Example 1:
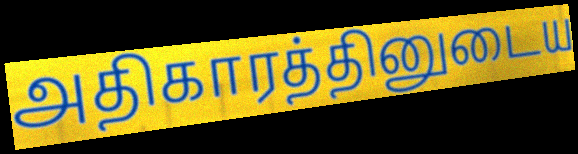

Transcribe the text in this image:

அதிகாரத்தினுடைய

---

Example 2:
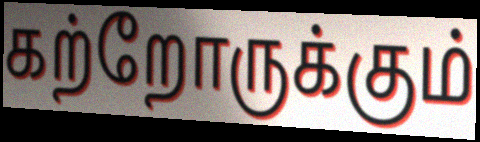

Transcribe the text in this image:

கற்றோருக்கும்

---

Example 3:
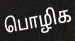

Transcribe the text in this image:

பொழிக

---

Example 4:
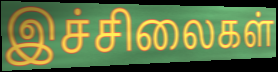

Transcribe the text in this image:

இச்சிலைகள்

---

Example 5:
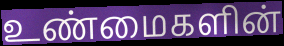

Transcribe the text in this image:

உண்மைகளின்